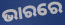
ଭାରରେ